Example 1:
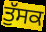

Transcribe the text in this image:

ਤੁੱਸਕ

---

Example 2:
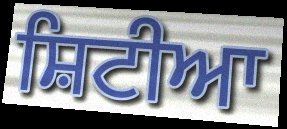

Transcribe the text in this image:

ਸ਼ਿਟੀਆ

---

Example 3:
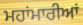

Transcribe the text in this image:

ਮਹਾਂਮਾਰੀਆਂ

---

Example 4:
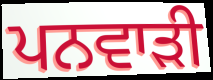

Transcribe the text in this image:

ਪਨਵਾੜੀ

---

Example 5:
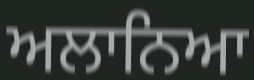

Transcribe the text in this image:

ਅਲਾਨਿਆ